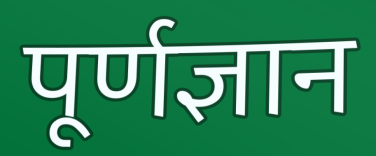
पूर्णज्ञान